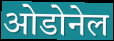
ओडोनेल